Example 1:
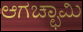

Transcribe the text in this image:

ಆಗಚ್ಛಾಮಿ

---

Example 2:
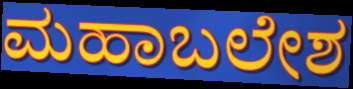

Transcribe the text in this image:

ಮಹಾಬಲೇಶ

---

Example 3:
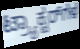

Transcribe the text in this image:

ಟ್ರ್ಯಾಕ್ಟರ್‌ಗಳ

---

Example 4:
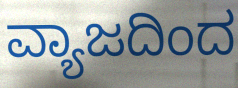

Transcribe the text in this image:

ವ್ಯಾಜದಿಂದ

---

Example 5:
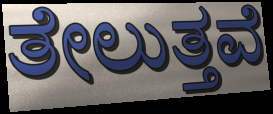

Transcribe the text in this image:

ತೇಲುತ್ತವೆ